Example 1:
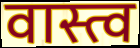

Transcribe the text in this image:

वास्त्व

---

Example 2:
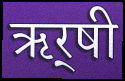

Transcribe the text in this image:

ऋर्षी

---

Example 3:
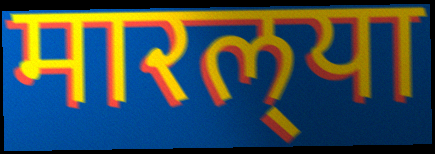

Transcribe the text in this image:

मारल्या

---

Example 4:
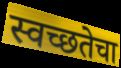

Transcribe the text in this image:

स्वच्छतेचा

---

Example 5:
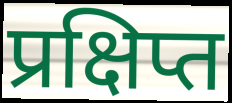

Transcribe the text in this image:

प्रक्षिप्त